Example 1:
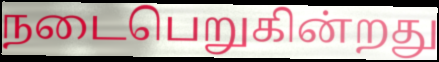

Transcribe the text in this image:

நடைபெறுகின்றது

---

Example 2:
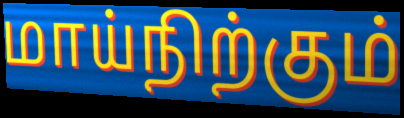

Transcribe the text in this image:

மாய்நிற்கும்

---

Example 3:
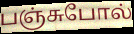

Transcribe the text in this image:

பஞ்சுபோல்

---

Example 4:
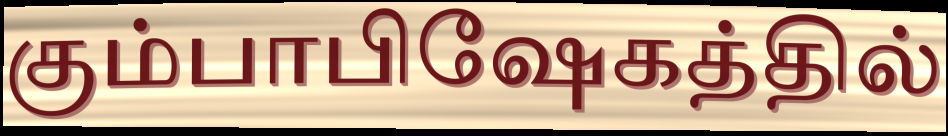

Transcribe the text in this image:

கும்பாபிஷேகத்தில்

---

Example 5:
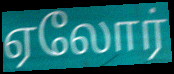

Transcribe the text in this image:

ஏலோர்